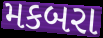
મકબરા